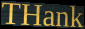
THank